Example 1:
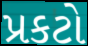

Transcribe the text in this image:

પ્રકટો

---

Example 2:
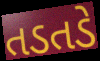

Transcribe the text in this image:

તડતડે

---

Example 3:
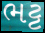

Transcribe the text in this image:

ભટ્ટ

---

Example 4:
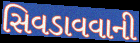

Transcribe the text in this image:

સિવડાવવાની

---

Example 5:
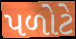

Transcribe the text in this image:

પળોટે